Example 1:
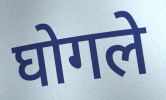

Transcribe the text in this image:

घोगले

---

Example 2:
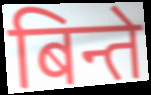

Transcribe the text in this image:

बिन्ते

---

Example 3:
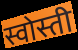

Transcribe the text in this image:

स्वोस्ती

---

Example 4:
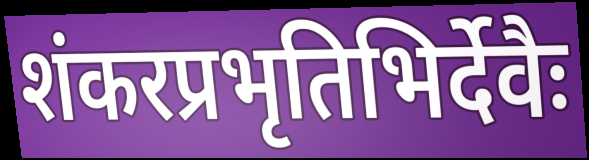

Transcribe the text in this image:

शंकरप्रभृतिभिर्देवैः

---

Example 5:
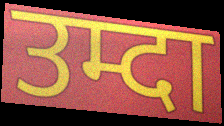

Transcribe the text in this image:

उम्‍दा